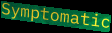
Symptomatic